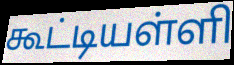
கூட்டியள்ளி